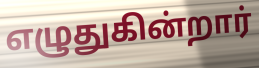
எழுதுகின்றார்